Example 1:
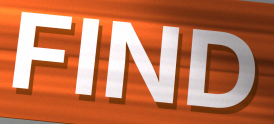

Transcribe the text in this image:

FIND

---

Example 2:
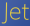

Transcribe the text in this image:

Jet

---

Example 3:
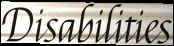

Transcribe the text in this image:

Disabilities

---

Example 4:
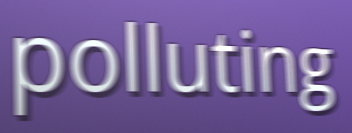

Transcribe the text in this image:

polluting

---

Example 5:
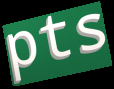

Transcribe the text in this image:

pts